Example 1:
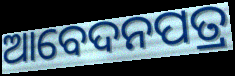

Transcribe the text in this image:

ଆବେଦନପତ୍ର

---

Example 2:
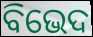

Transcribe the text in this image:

ବିଭେଦ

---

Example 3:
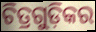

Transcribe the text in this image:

ଚିତ୍ରଗୁଡ଼ିକର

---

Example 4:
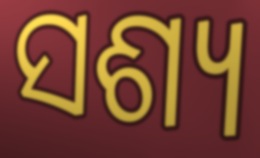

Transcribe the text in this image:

ସଶ୍ୟ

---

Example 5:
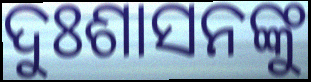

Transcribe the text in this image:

ଦୁଃଶାସନଙ୍କୁ